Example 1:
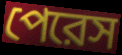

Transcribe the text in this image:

পেরেস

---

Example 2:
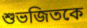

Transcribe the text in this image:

শুভজিতকে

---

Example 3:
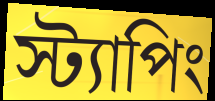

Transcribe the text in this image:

স্ট্যাপিং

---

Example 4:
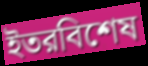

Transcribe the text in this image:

ইতরবিশেষ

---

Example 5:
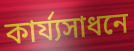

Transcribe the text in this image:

কার্য্যসাধনে